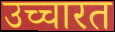
उच्चारत